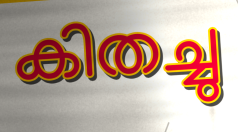
കിതച്ചു